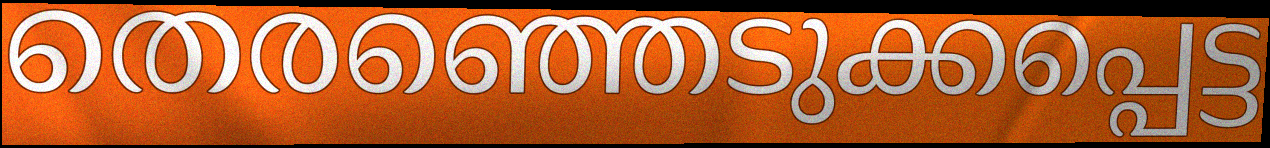
തെരഞ്ഞെടുക്കപ്പെട്ട